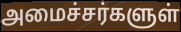
அமைச்சர்களுள்